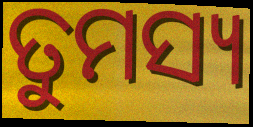
ତୁମସ୍ୟ